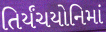
તિર્યંચયોનિમાં